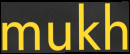
mukh